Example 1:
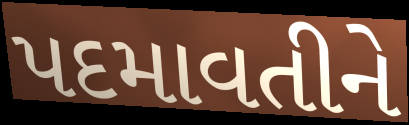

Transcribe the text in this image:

પદમાવતીને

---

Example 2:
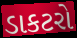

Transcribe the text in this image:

ડાકટરો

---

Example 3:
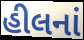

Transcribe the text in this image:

હીલનાં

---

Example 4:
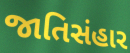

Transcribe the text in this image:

જાતિસંહાર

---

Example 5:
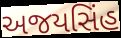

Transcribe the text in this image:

અજયસિંહ